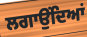
ਲਗਾਉਂਦਿਆਂ